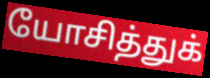
யோசித்துக்